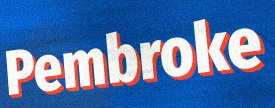
Pembroke